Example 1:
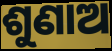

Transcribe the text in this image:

ଶୁଣାଅ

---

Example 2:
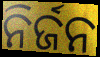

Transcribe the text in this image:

ନିର୍ଜନ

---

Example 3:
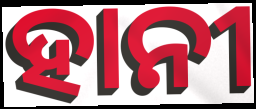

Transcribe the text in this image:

ହାନୀ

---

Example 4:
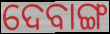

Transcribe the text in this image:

ଦେବାଙ୍ଗ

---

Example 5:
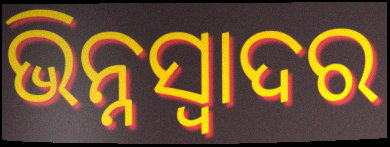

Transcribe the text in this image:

ଭିନ୍ନସ୍ବାଦର